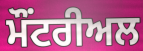
ਮੌਂਟਰੀਅਲ